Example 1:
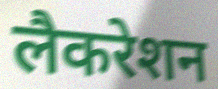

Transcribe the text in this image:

लैकरेशन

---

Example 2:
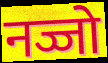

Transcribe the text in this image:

नज्जो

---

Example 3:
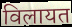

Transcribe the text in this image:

विलायत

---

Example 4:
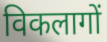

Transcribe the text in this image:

विकलागों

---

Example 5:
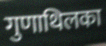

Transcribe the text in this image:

गुणाथिलका